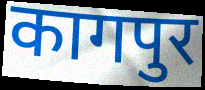
कागपुर